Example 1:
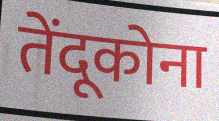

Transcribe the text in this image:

तेंदूकोना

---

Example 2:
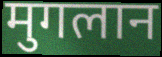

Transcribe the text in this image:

मुगलान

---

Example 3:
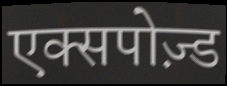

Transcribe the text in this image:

एक्सपोज़्ड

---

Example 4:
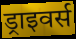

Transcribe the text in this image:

ड्राइवर्स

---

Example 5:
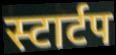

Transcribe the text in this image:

स्टार्टप